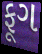
ફૂગ